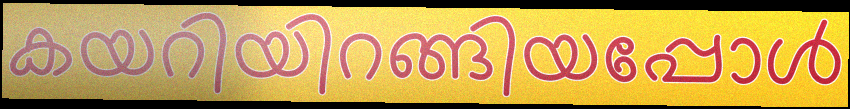
കയറിയിറങ്ങിയപ്പോൾ